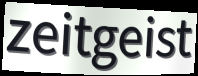
zeitgeist